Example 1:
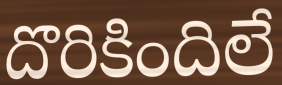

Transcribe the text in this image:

దొరికిందిలే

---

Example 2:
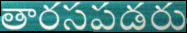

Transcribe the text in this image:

తారసపడరు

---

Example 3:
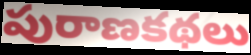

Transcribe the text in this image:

పురాణకథలు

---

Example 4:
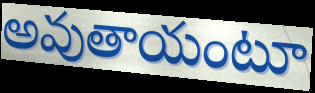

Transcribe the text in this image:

అవుతాయంటూ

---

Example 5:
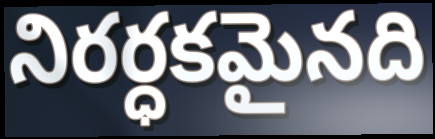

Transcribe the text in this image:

నిరర్ధకమైనది